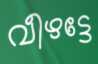
വീഴട്ടേ